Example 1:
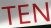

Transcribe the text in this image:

TEN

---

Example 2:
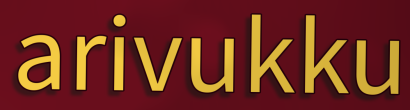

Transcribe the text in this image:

arivukku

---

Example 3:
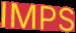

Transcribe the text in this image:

IMPS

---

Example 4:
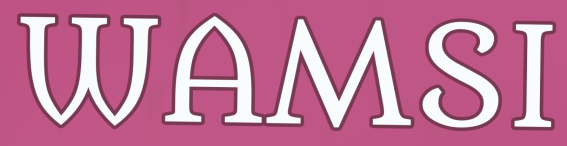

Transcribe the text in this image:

WAMSI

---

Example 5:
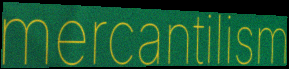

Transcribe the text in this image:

mercantilism